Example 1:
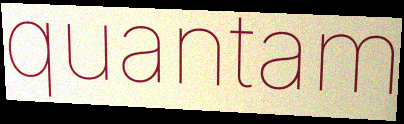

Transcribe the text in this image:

quantam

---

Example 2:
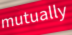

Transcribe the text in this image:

mutually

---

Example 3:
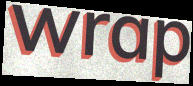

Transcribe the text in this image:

wrap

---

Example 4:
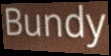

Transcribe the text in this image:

Bundy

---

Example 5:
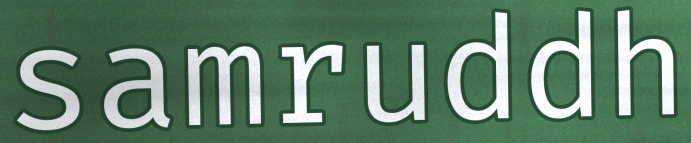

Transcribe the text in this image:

samruddh